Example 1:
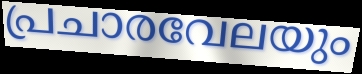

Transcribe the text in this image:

പ്രചാരവേലയും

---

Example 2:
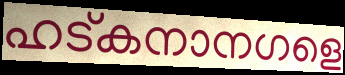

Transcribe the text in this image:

ഹട്കനാനഗളെ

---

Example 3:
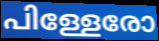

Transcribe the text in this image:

പിള്ളേരോ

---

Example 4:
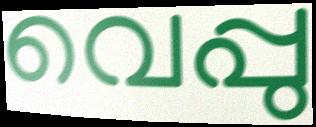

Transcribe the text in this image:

വെപ്പു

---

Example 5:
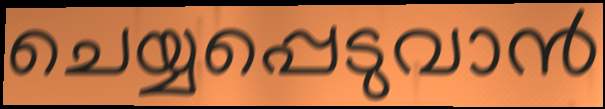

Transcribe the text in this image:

ചെയ്യപ്പെടുവാൻ